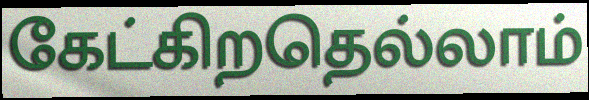
கேட்கிறதெல்லாம்